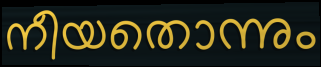
നീയതൊന്നും